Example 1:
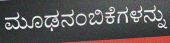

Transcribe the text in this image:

ಮೂಢನಂಬಿಕೆಗಳನ್ನು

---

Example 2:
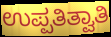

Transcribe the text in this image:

ಉಪ್ಪತಿತ್ವಾತಿ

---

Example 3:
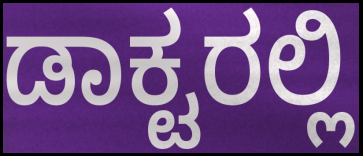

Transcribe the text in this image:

ಡಾಕ್ಟರಲ್ಲಿ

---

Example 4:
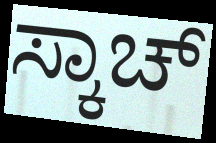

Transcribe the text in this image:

ಸ್ಕಾಚ್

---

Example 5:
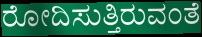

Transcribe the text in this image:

ರೋದಿಸುತ್ತಿರುವಂತೆ